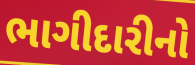
ભાગીદારીનો